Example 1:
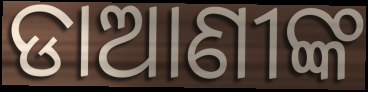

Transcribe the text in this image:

ଡାଆଣୀଙ୍କ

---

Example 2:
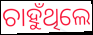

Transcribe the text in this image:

ଚାହୁଁଥିଲେ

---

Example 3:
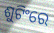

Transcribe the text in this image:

ଶୁଟିଂରେ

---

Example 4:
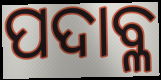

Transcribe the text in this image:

ପଦାବ୍ଳ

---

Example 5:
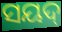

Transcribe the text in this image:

ସୟଦ୍